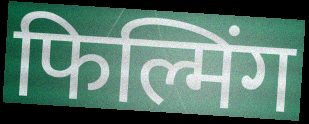
फिल्मिंग